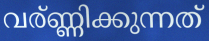
വര്ണ്ണിക്കുന്നത്